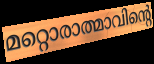
മറ്റൊരാത്മാവിന്റെ